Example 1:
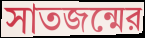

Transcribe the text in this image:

সাতজন্মের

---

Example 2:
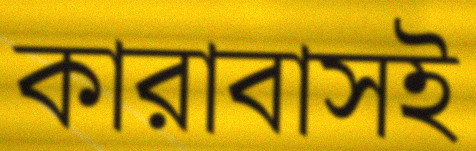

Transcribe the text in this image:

কারাবাসই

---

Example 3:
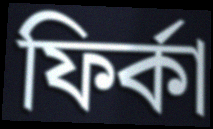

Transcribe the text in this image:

ফির্কা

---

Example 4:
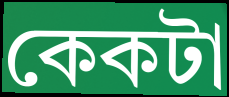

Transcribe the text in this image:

কেকটা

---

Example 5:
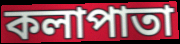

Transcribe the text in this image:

কলাপাতা